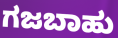
ಗಜಬಾಹು